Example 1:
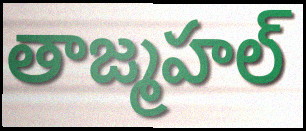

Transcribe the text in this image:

తాజ్మహల్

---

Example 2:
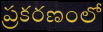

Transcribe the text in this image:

ప్రకరణంలో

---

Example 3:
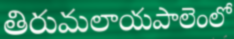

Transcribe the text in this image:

తిరుమలాయపాలెంలో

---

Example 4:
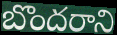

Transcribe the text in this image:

బొందరాని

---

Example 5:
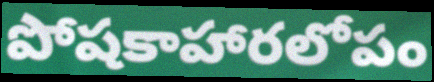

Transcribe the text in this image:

పోషకాహారలోపం